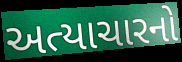
અત્યાચારનો